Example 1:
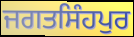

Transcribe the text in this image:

ਜਗਤਸਿੰਹਪੁਰ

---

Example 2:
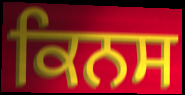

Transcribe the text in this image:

ਕਿਨਸ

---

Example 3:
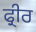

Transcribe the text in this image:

ਫ੍ਰੀਰ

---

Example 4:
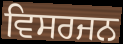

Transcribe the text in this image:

ਵਿਸਰਜਨ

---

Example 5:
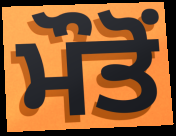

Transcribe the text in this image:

ਮੌਤੋਂ